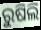
ରୁଷିଲି